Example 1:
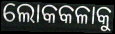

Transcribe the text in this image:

ଲୋକକଳାକୁ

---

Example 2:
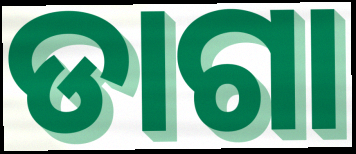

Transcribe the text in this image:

ଡାଗା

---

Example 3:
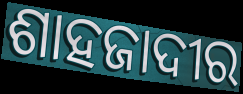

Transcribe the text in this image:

ଶାହଜାଦୀର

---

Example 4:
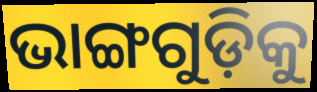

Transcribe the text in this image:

ଭାଙ୍ଗଗୁଡ଼ିକୁ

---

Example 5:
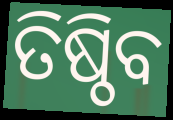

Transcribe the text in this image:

ତିଷ୍ଠିବ